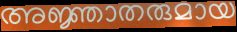
അജ്ഞാതരുമായ